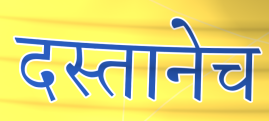
दस्तानेच